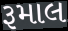
રૂમાલ